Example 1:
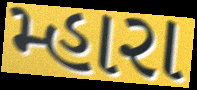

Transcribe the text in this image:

મ્હારા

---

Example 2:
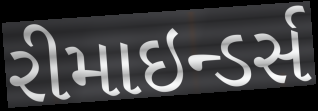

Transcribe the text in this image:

રીમાઇન્ડર્સ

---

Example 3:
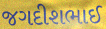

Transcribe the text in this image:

જગદીશભાઈ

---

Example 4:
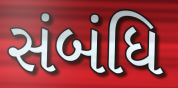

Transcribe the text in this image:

સંબંધિ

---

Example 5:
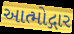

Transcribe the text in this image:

આત્મોદ્ગાર